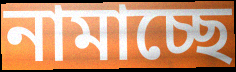
নামাচ্ছে